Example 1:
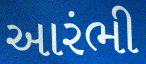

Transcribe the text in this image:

આરંભી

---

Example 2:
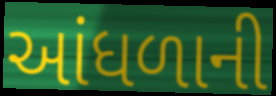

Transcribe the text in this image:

આંધળાની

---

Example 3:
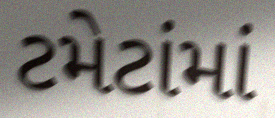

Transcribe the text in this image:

ટમેટાંમાં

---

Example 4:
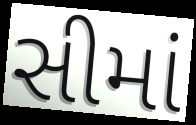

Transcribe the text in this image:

સીમાં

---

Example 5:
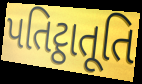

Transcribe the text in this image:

પતિટ્ઠાતૂતિ